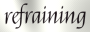
refraining